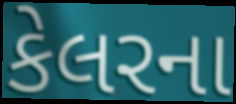
કેલરના